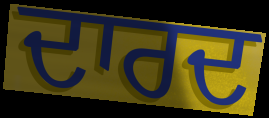
ਦਾਰਦ